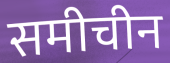
समीचीन